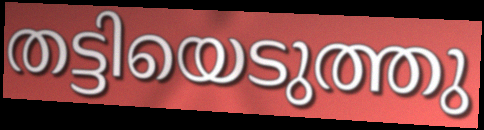
തട്ടിയെടുത്തു